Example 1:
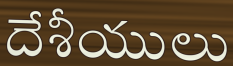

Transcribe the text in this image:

దేశీయులు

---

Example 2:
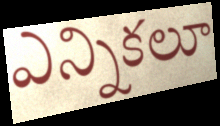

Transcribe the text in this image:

ఎన్నికలూ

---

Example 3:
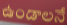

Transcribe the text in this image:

ఉండాలనే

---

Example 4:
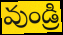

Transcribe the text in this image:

వుండ్రి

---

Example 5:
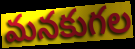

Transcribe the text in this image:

మనకుగల